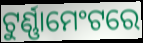
ଟୁର୍ଣ୍ଣାମେଂଟରେ